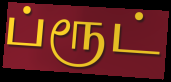
ப்ரூட்